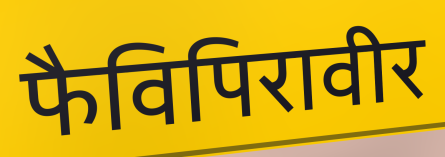
फैविपिरावीर